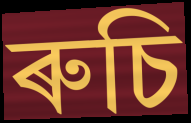
ৰুচি